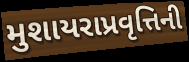
મુશાયરાપ્રવૃત્તિની